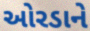
ઓરડાને